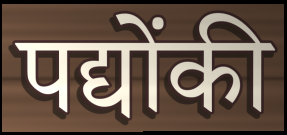
पद्योंकी